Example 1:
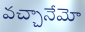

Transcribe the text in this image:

వచ్చానేమో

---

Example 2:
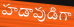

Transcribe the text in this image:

హడావుడిగా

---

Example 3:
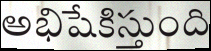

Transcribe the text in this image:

అభిషేకిస్తుంది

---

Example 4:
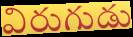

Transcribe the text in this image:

విరుగుడు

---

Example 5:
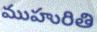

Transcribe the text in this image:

ముహురితి